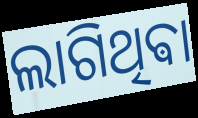
ଲାଗିଥିଵା